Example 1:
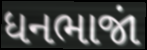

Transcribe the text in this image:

ધનભાજાં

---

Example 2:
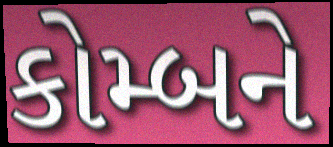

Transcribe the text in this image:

કોમ્બને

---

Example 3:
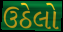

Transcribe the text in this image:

ઉઠેલો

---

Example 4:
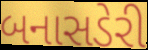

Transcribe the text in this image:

બનાસડેરી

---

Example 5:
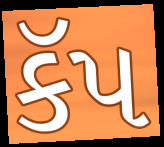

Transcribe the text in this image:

કૅપ